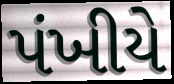
પંખીયે